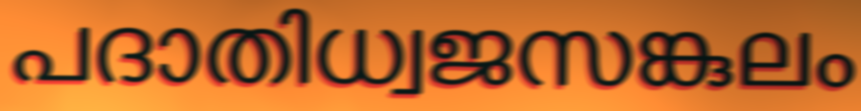
പദാതിധ്വജസങ്കുലം